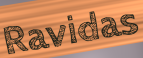
Ravidas